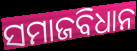
ସମାଜବିଧାନ